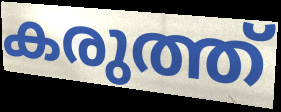
കരുത്ത്